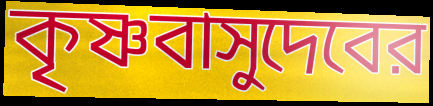
কৃষ্ণবাসুদেবের